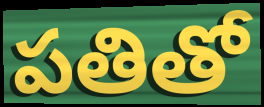
పతితో